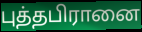
புத்தபிரானை